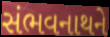
સંભવનાથને